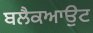
ਬਲੈਕਆਉਟ